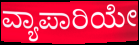
ವ್ಯಾಪಾರಿಯೇ